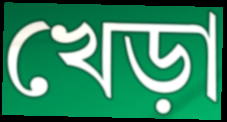
খেড়া